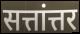
सत्तांत्तर